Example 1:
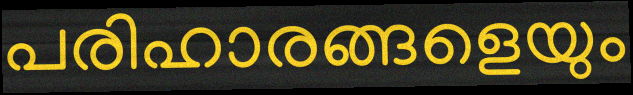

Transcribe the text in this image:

പരിഹാരങ്ങളെയും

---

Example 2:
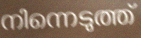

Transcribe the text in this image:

നിന്നെടുത്ത്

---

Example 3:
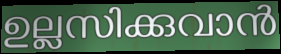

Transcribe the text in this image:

ഉല്ലസിക്കുവാൻ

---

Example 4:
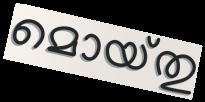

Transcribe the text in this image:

മൊയ്‌തു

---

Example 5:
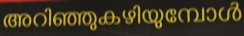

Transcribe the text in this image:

അറിഞ്ഞുകഴിയുമ്പോൾ